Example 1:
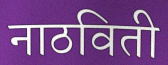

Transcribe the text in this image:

नाठविती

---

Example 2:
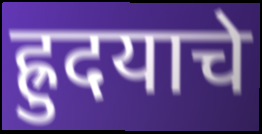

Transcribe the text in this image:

ह्रुदयाचे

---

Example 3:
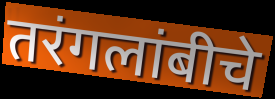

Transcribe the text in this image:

तरंगलांबीचे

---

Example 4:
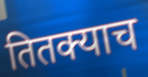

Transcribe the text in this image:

तितक्याच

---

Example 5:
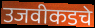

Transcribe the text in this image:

उजवीकडचे